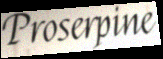
Proserpine